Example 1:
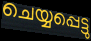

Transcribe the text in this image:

ചെയ്യപ്പെട്ടു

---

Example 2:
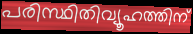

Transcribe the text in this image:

പരിസ്ഥിതിവ്യൂഹത്തിന്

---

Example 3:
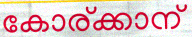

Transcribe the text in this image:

കോര്ക്കാന്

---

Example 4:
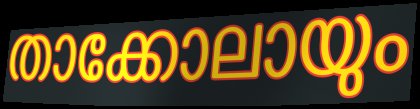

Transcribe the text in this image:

താക്കോലായും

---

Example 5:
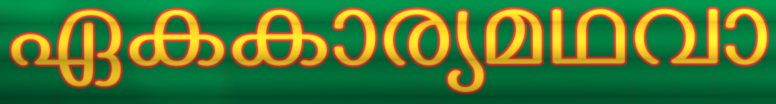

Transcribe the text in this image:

ഏകകാര്യമഥവാ